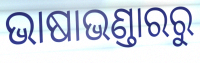
ଭାଷାଭଣ୍ଡାରରୁ